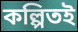
কল্পিতই